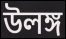
উলঙ্গ